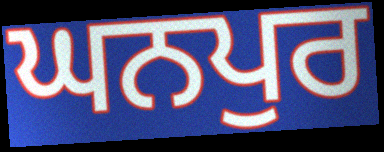
ਘਨਪੁਰ